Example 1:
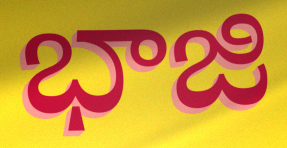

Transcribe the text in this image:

భాజి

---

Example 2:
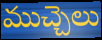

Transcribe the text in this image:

ముచ్చెలు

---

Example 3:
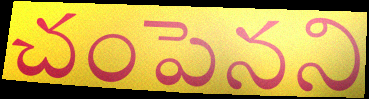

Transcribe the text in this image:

చంపెనని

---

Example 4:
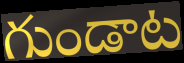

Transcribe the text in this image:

గుండాట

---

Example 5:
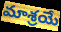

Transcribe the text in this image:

మాశ్రయే